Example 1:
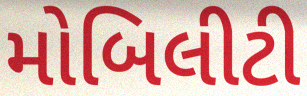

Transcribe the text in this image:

મોબિલીટી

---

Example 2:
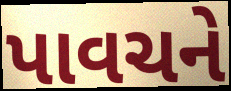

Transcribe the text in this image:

પાવચને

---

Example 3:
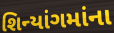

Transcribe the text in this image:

શિન્યાંગમાંના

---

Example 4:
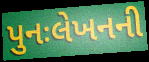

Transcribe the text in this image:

પુનઃલેખનની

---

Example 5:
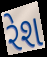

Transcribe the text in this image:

રેશ